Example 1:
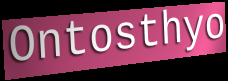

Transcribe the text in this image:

Ontosthyo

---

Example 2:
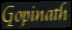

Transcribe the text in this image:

Gopinath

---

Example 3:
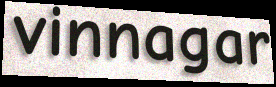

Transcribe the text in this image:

vinnagar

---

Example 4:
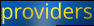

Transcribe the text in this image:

providers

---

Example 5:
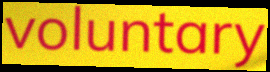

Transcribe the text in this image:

voluntary